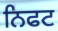
ਨਿਫਟ